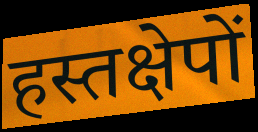
हस्तक्षेपों